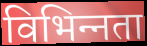
विभिन्‍नता